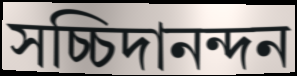
সচ্চিদানন্দন